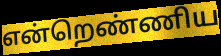
என்றெண்ணிய